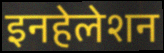
इनहेलेशन